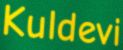
Kuldevi